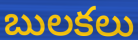
బులకలు